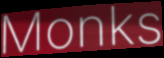
Monks